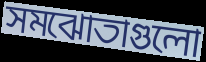
সমঝোতাগুলো